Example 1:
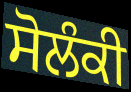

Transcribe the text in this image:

ਸੋਲੰਕੀ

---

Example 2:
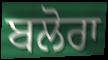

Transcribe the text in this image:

ਬਲੋਰਾ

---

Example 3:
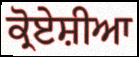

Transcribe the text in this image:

ਕ੍ਰੋਏਸ਼ੀਆ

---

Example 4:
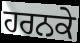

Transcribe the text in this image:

ਹਰਨਕੇ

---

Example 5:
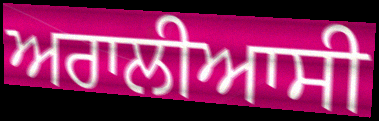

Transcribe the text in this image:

ਅਰਾਲੀਆਸੀ